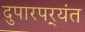
दुपारपर्यंत